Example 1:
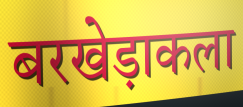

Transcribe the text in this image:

बरखेड़ाकला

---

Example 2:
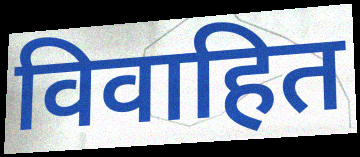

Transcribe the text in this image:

विवाहित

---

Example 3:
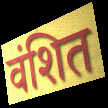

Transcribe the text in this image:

वंशित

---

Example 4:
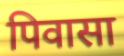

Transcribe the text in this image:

पिवासा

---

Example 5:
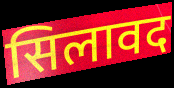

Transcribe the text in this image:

सिलावद